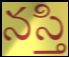
నస్తి